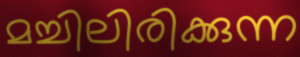
മച്ചിലിരിക്കുന്ന